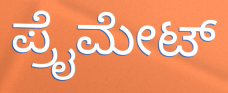
ಪ್ರೈಮೇಟ್